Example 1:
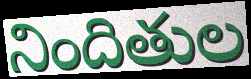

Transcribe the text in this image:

నిందితుల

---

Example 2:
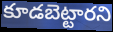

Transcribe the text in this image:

కూడబెట్టారని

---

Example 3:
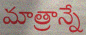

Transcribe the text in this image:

మాత్రాన్నే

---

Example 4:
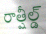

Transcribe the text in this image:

రాత్షీల్డ్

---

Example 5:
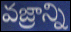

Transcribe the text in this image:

వజ్రాన్ని